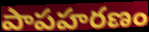
పాపహరణం